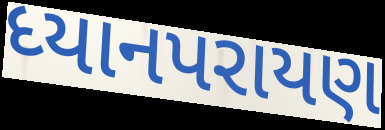
ધ્યાનપરાયણ